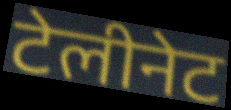
टेलीनेट